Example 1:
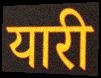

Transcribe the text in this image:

यारी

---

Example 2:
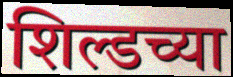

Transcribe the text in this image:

शिल्डच्या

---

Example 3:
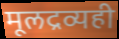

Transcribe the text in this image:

मूलद्रव्यही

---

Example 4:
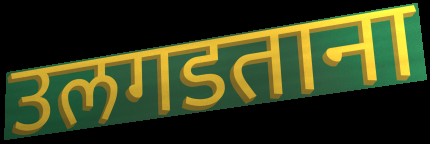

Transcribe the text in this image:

उलगडताना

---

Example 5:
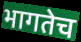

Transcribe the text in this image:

भागतेच